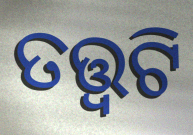
ତତ୍ତ୍ଵଟି